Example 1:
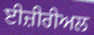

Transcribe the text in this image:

ਈਜ਼ੀਰੀਅਲ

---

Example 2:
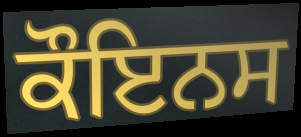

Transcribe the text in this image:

ਕੌਇਨਸ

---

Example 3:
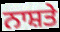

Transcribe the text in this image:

ਨਾਸ਼ਤੇ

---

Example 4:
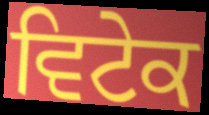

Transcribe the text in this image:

ਵਿਟੇਕ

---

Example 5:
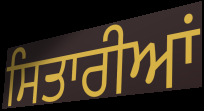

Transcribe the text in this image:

ਸਿਤਾਰੀਆਂ